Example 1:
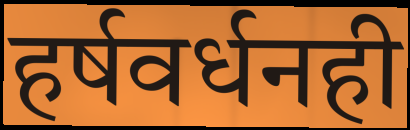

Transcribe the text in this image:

हर्षवर्धनही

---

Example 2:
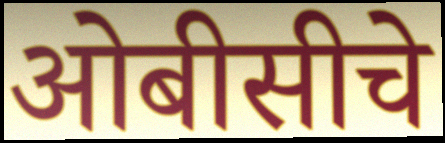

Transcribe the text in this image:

ओबीसीचे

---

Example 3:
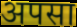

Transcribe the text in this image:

अपसा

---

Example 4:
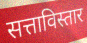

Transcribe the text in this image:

सत्ताविस्तार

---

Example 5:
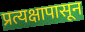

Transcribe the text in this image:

प्रत्यक्षापासून